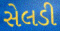
સેલડી